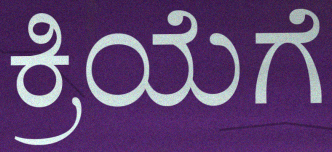
ಕ್ರಿಯೆಗೆ